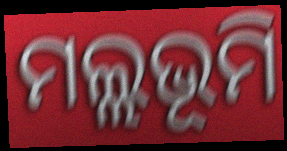
ମଲ୍ଲଭୂମି